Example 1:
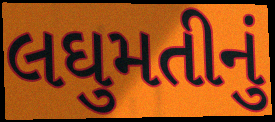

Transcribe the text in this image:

લઘુમતીનું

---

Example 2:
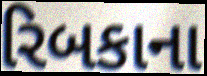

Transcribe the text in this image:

રિબકાના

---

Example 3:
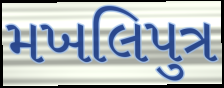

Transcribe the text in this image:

મખલિપુત્ર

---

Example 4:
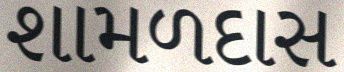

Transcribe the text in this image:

શામળદાસ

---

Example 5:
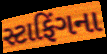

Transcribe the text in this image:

સ્ટાફિંગના